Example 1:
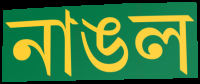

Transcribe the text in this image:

নাঙল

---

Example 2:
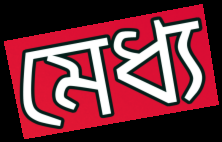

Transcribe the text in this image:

মেধ্য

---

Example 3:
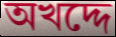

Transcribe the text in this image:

অখদ্দে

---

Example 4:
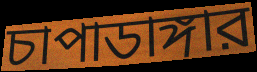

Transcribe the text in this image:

চাপাডাঙ্গার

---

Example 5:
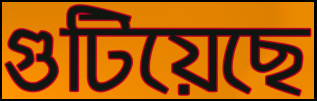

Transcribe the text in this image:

গুটিয়েছে